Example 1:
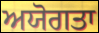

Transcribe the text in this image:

ਅਯੋਗਤਾ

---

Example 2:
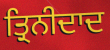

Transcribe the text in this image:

ਤ੍ਰਿਨੀਦਾਦ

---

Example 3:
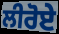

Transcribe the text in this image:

ਲੀਰੋਏ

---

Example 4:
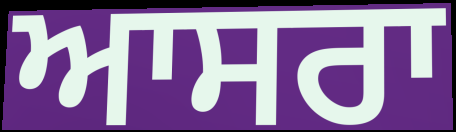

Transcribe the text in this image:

ਆਸਰਾ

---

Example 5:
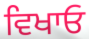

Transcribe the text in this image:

ਵਿਖਾਓ